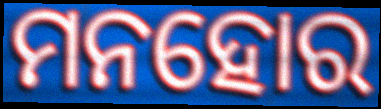
ମନହୋର